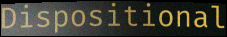
Dispositional